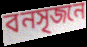
বনসৃজনে